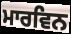
ਮਾਰਵਿਨ